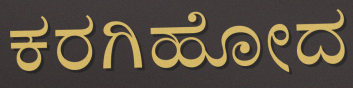
ಕರಗಿಹೋದ